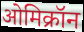
ओमिक्रॉन